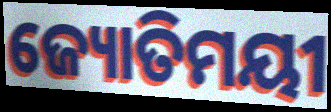
ଜ୍ୟୋତିମୟୀ